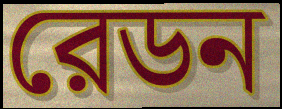
রেডন